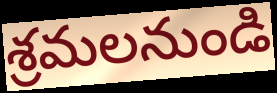
శ్రమలనుండి